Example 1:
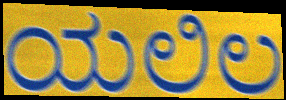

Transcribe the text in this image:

ಯಲಿಲ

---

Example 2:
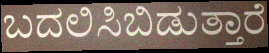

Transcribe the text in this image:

ಬದಲಿಸಿಬಿಡುತ್ತಾರೆ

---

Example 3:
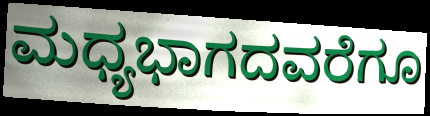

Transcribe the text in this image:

ಮಧ್ಯಭಾಗದವರೆಗೂ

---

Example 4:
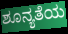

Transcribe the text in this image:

ಶೂನ್ಯತೆಯ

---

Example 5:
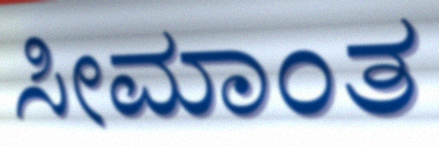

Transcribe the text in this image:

ಸೀಮಾಂತ